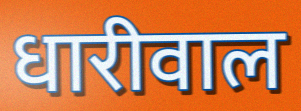
धारीवाल